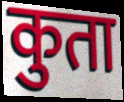
कुता